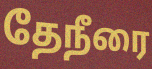
தேநீரை